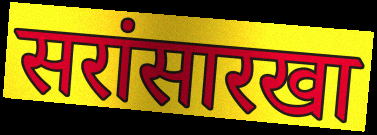
सरांसारखा